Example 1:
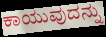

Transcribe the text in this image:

ಕಾಯುವುದನ್ನು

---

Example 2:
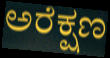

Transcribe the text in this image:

ಅರೆಕ್ಷಣ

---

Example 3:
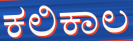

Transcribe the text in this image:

ಕಲಿಕಾಲ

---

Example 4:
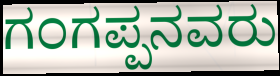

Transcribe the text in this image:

ಗಂಗಪ್ಪನವರು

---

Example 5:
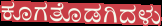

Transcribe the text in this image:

ಕೂಗತೊಡಗಿದಳು